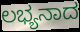
ಲಭ್ಯನಾದ